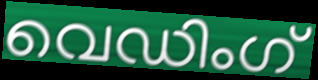
വെഡിംഗ്